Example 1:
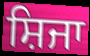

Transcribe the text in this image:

ਸ਼ਿਜਾ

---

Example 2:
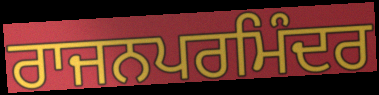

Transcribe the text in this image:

ਰਾਜਨਪਰਮਿੰਦਰ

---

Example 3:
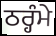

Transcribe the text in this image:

ਠਰ੍ਹੰਮੇ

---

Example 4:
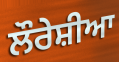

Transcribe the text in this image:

ਲੌਰੇਸ਼ੀਆ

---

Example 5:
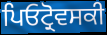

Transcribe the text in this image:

ਪਿਓਟ੍ਰੋਵਸਕੀ